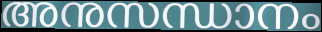
അനുസന്ധാനം